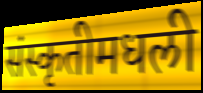
संस्कृतीमधली